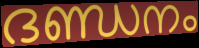
ദണ്ഡനം